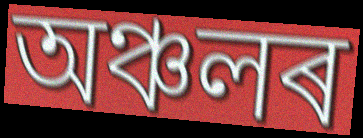
অঞ্চলৰ